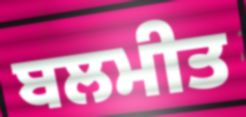
ਬਲਮੀਤ